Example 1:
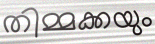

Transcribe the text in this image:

തിമ്മക്കയും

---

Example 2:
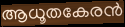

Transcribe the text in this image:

ആധൂതകേരൻ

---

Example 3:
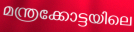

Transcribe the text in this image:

മന്ത്രക്കോട്ടയിലെ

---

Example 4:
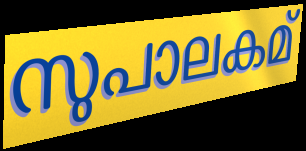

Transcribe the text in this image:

സുപാലകമ്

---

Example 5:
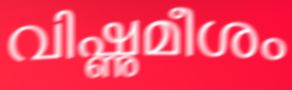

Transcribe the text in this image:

വിഷ്ണുമീശം